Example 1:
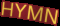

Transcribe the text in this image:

HYMN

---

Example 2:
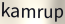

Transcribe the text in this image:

kamrup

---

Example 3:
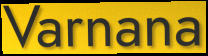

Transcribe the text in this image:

Varnana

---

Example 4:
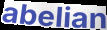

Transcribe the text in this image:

abelian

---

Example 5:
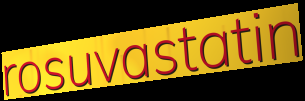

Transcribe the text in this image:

rosuvastatin